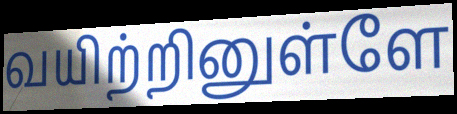
வயிற்றினுள்ளே